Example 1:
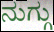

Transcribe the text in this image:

ನುಗ್ಗು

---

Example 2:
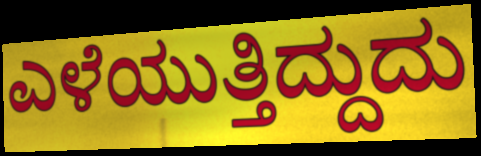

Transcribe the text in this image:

ಎಳೆಯುತ್ತಿದ್ದುದು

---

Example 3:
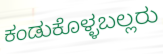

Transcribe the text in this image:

ಕಂಡುಕೊಳ್ಳಬಲ್ಲರು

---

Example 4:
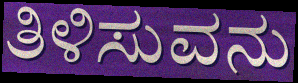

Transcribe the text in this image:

ತಿಳಿಸುವನು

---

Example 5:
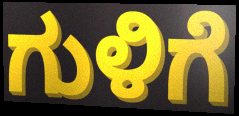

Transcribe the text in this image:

ಗುಳಿಗೆ